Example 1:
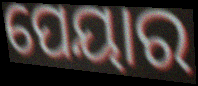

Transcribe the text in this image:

ପେୟାର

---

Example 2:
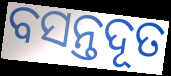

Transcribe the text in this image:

ବସନ୍ତଦୂତ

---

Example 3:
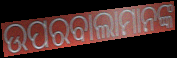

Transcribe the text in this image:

ଉପରବାଲାମାନଙ୍କ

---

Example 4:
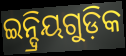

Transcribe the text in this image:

ଇନ୍ଦ୍ରିୟଗୁଡ଼ିକ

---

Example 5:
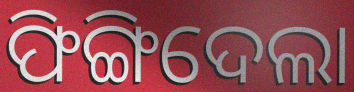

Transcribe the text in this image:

ଫିଙ୍ଗିଦେଲା